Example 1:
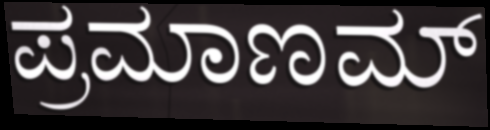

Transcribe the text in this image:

ಪ್ರಮಾಣಮ್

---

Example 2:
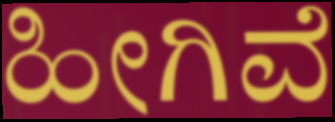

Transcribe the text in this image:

ಹೀಗಿವೆ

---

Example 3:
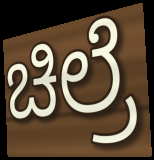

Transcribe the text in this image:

ಚಿಲ್ರೆ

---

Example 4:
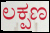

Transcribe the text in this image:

ಲಕ್ಪಣ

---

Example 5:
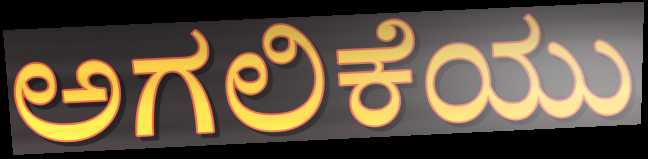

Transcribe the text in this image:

ಅಗಲಿಕೆಯು